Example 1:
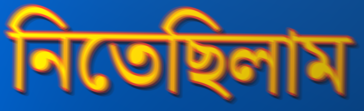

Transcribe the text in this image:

নিতেছিলাম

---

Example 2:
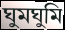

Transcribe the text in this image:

ঘুমঘুমি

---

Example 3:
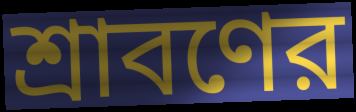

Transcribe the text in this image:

শ্রাবণের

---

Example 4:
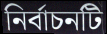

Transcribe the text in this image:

নির্বাচনটি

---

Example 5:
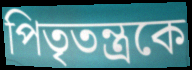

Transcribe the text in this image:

পিতৃতন্ত্রকে